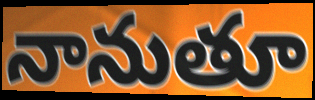
నానుతూ